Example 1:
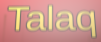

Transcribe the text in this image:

Talaq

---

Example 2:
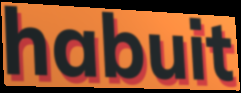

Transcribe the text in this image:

habuit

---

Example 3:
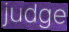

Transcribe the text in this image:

judge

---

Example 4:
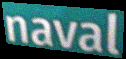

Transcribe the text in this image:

naval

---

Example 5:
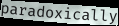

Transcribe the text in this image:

paradoxically